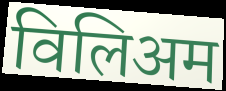
विलिअम